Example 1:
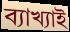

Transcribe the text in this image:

ব্যাখ্যাই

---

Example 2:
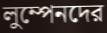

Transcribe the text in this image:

লুম্পেনদের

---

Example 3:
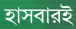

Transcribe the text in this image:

হাসবারই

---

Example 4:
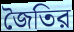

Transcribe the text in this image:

জৈতির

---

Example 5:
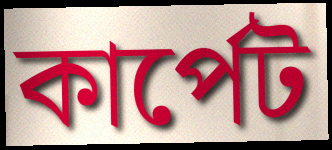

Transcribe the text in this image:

কার্পেট